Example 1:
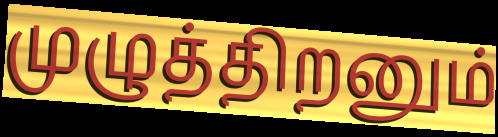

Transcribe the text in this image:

முழுத்திறனும்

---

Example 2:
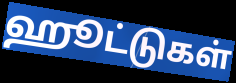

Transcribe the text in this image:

ஹூட்டுகள்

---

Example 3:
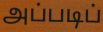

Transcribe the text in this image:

அப்படிப்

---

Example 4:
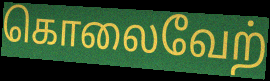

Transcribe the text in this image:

கொலைவேற்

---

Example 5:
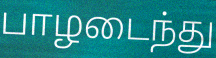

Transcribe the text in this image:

பாழடைந்து